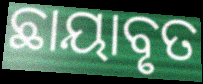
ଛାୟାବୃତ